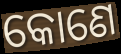
କୋଣେ